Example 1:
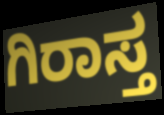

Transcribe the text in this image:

ಗಿರಾಸ್ತ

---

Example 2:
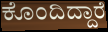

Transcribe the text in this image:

ಕೊಂದಿದ್ದಾರೆ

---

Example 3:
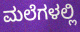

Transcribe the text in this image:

ಮಲೆಗಳಲ್ಲಿ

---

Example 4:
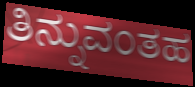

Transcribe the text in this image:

ತಿನ್ನುವಂತಹ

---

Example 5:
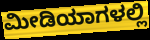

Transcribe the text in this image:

ಮೀಡಿಯಾಗಳಲ್ಲಿ